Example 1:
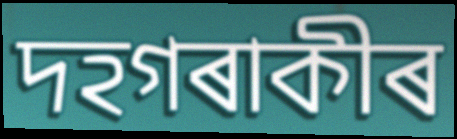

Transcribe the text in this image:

দহগৰাকীৰ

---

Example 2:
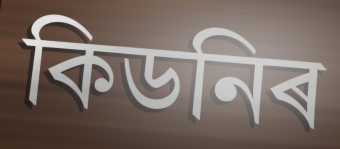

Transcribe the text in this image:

কিডনিৰ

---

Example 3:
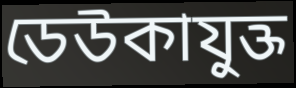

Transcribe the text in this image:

ডেউকাযুক্ত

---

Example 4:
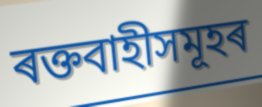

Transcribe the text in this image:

ৰক্তবাহীসমূহৰ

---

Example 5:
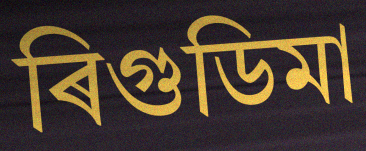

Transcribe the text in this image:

ৰিগুডিমা